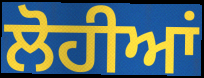
ਲੋਹੀਆਂ